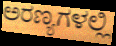
ಅರಣ್ಯಗಳಲ್ಲಿ